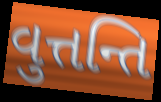
વુત્તન્તિ